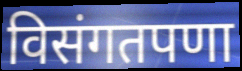
विसंगतपणा